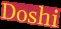
Doshi